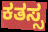
ಕತಸ್ಸ